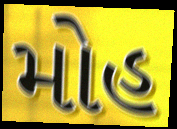
મોહ